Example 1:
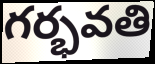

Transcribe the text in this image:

గర్భవతి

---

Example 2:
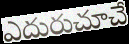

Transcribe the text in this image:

ఎదురుచూచే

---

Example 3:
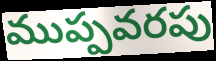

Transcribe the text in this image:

ముప్పవరపు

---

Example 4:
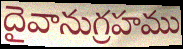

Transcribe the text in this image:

దైవానుగ్రహము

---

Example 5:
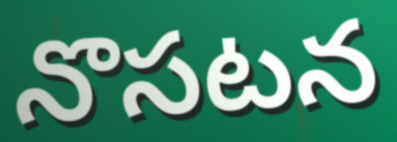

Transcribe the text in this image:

నొసటన